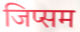
जिप्सम